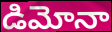
డిమోనా